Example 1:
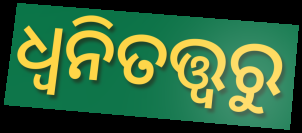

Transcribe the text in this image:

ଧ୍ୱନିତତ୍ତ୍ୱରୁ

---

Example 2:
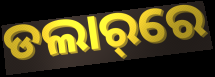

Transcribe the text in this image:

ଡଲାର୍‌ରେ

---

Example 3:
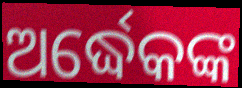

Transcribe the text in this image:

ଅର୍ଦ୍ଧେକଙ୍କ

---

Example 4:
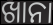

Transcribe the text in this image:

ଖାନା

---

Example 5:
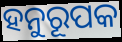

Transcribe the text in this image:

ହନୁରୂପକ